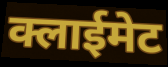
क्लाईमेट